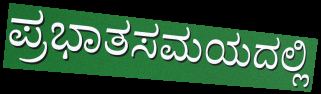
ಪ್ರಭಾತಸಮಯದಲ್ಲಿ